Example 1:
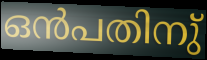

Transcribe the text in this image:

ഒൻപതിനു്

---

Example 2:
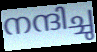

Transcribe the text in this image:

നന്ദിച്ചു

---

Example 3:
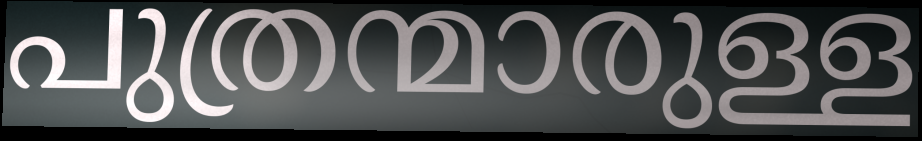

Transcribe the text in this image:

പുത്രന്മാരുള്ള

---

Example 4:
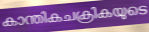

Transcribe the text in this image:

കാന്തികചക്രികയുടെ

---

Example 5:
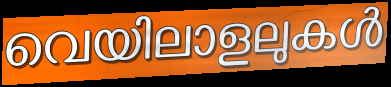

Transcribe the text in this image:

വെയിലാളലുകൾ